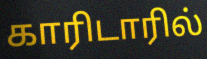
காரிடாரில்